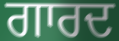
ਗਾਰਦ